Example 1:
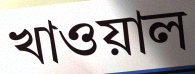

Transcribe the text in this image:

খাওয়াল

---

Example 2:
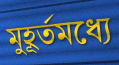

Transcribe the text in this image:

মুহূর্তমধ্যে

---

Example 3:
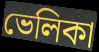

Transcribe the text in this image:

ভেলিকা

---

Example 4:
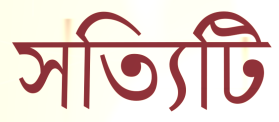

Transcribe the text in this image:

সত্যিটি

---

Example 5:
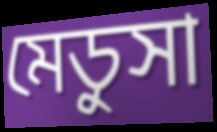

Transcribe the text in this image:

মেডুসা